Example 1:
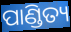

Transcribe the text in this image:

ପାଣ୍ଡିତ୍ୟ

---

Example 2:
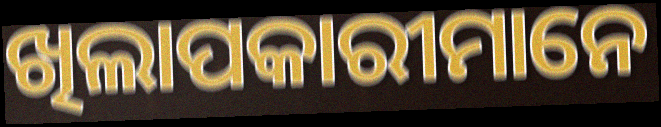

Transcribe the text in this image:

ଖିଲାପକାରୀମାନେ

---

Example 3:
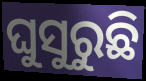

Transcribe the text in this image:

ଘୁସୁରୁଛି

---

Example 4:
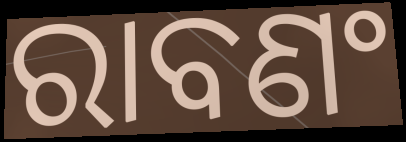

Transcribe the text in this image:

ରାବଣଂ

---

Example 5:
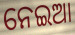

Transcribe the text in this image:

ନେଇଆ